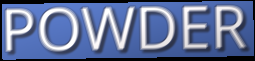
POWDER